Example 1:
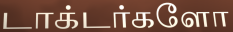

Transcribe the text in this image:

டாக்டர்களோ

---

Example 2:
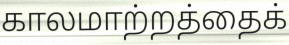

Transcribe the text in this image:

காலமாற்றத்தைக்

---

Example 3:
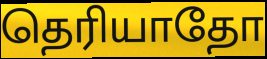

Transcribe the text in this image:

தெரியாதோ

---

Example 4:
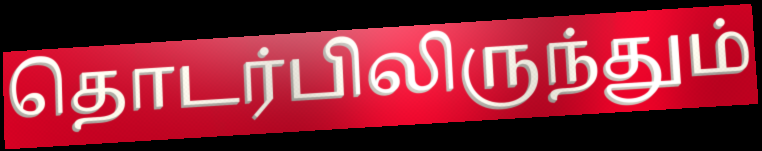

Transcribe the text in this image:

தொடர்பிலிருந்தும்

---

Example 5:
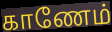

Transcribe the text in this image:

காணேம்